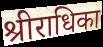
श्रीराधिका